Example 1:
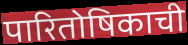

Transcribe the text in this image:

पारितोषिकाची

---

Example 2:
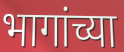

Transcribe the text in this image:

भागांच्या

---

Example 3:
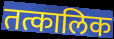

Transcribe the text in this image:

तत्कालिक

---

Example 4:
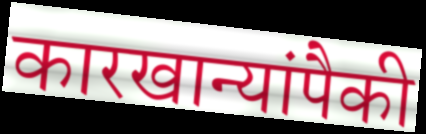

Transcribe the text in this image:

कारखान्यांपैकी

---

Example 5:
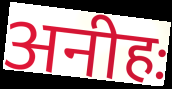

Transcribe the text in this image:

अनीहः